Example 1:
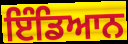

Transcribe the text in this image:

ਇੰਡਿਆਨ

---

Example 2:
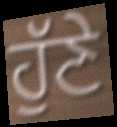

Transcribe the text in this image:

ਹੁੱਣੇ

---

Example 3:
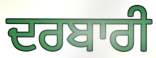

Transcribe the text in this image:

ਦਰਬਾਰੀ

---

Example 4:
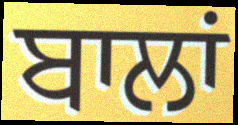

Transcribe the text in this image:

ਬਾਲਾਂ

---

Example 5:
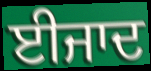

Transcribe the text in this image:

ਈਜਾਦ